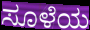
ಸೂಳೆಯ